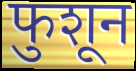
फुशून